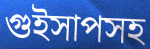
গুইসাপসহ